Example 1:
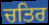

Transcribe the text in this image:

ਚਤਿਰ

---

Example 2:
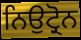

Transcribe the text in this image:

ਨਿਉਟ੍ਰੋਨ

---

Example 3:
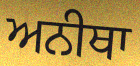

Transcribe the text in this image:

ਅਨੀਥਾ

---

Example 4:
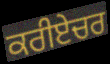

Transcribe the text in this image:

ਕਰੀਏਚਰ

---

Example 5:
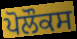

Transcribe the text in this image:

ਪੋਲੌਕਸ